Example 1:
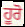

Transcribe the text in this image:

ਹੂਰੋ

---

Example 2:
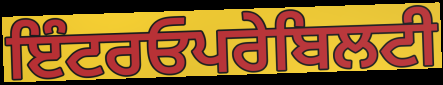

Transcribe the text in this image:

ਇੰਟਰਓਪਰੇਬਿਲਟੀ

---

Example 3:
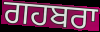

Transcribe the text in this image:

ਗਹਬਰਾ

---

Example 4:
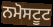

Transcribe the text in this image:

ਨਮੋਸਟੂਟ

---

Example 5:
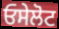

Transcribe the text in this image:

ਓਸੇਲੋਟ